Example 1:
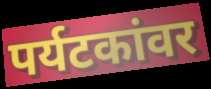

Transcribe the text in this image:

पर्यटकांवर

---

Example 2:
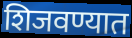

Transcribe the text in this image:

शिजवण्यात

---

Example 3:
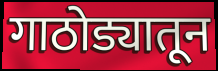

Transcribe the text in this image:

गाठोड्यातून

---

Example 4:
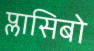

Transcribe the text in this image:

प्लासिबो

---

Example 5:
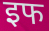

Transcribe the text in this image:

इफ